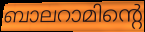
ബാലറാമിന്റെ